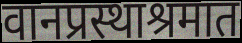
वानप्रस्थाश्रमात